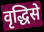
वृद्धिसे